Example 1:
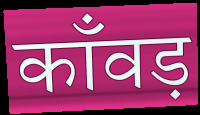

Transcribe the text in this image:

काँवड़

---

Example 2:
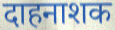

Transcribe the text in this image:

दाहनाशक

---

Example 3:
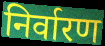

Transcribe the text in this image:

निर्वारण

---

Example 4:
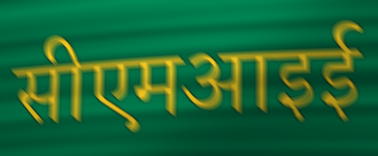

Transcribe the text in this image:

सीएमआइई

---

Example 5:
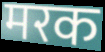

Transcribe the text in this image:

मरक